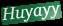
Huyayy